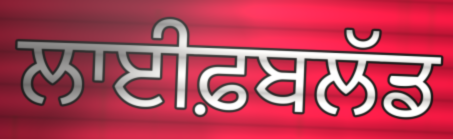
ਲਾਈਫ਼ਬਲੱਡ